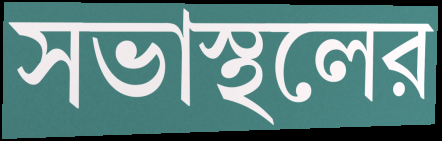
সভাস্থলের